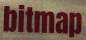
bitmap